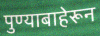
पुण्याबाहेरून